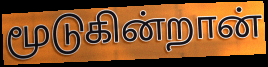
மூடுகின்றான்